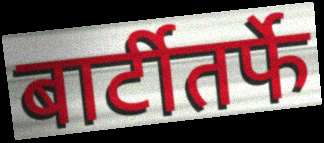
बार्टीतर्फे